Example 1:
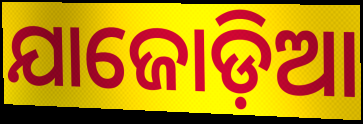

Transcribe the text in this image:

ଯାଜୋଡ଼ିଆ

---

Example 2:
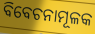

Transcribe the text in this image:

ବିବେଚନାମୂଳକ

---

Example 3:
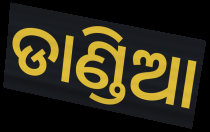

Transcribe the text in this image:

ଡାଣ୍ଡିଆ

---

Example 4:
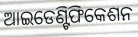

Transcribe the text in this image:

ଆଇଡେଣ୍ଟିଫିକେଶନ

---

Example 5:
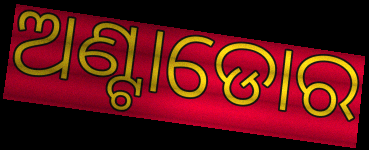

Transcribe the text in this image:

ଅଣ୍ଟାଡୋର